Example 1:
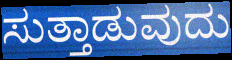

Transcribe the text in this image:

ಸುತ್ತಾಡುವುದು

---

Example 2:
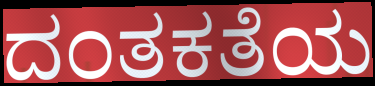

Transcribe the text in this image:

ದಂತಕತೆಯ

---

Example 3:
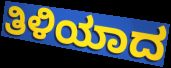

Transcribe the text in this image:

ತಿಳಿಯಾದ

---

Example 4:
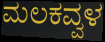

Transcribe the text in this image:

ಮಲಕವ್ವಳ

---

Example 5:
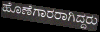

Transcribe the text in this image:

ಹೊಣೆಗಾರರಾಗಿದ್ದರು